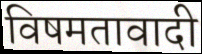
विषमतावादी